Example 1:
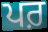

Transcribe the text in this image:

ਪਰ਼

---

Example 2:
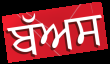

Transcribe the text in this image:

ਬੱਅਸ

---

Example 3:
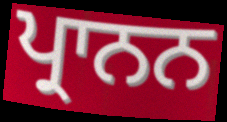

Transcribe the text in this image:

ਪ੍ਰਾਨਨ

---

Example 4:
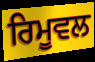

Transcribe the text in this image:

ਰਿਮੂਵਲ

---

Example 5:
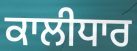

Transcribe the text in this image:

ਕਾਲੀਧਾਰ